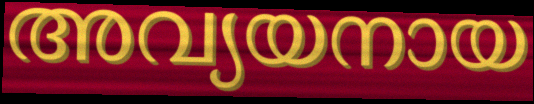
അവ്യയനായ